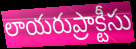
లాయరుప్రాక్టీసు